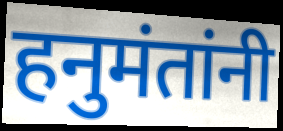
हनुमंतांनी